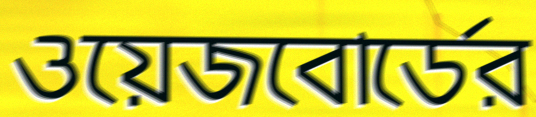
ওয়েজবোর্ডের